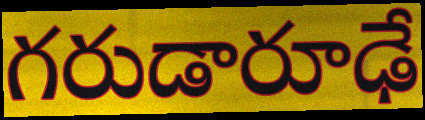
గరుడారూఢే